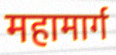
महामार्ग